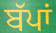
ਬੱਪਾਂ